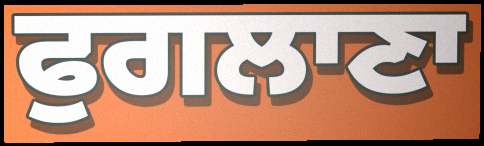
ਫੁਗਲਾਣਾ